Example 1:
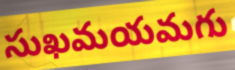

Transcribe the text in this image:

సుఖమయమగు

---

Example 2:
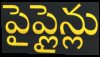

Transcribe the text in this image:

పైప్లైన్లు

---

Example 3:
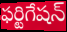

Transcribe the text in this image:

ఫర్టిగేషన్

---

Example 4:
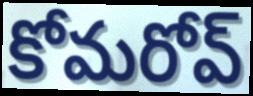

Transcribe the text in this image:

కోమరోవ్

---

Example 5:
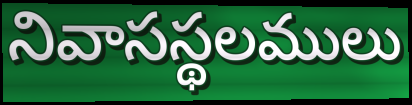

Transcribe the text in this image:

నివాసస్థలములు